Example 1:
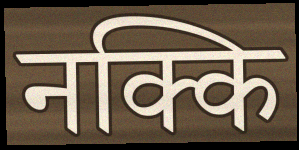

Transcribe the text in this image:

नक्कि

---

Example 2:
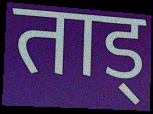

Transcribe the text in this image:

ताड्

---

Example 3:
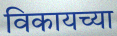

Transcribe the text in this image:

विकायच्या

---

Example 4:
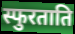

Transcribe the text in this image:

स्फुरताति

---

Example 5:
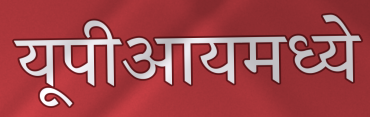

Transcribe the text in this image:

यूपीआयमध्ये